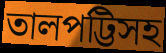
তালপট্টিসহ